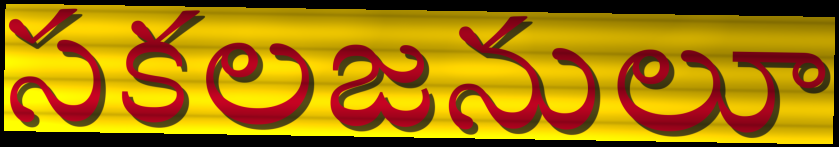
సకలజనులూ